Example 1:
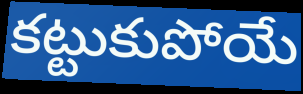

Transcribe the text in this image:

కట్టుకుపోయే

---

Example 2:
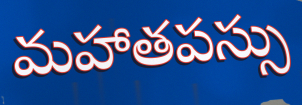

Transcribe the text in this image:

మహాతపస్సు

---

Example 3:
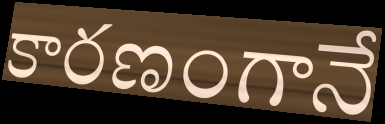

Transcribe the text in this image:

కారణంగానే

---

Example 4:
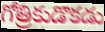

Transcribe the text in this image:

గోత్రికుడొకడు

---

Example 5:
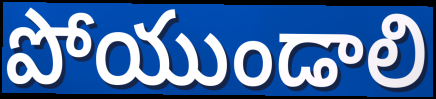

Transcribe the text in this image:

పోయుండాలి